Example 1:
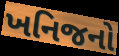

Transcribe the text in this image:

ખનિજનો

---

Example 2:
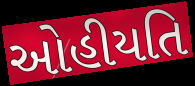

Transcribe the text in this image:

ઓહીયતિ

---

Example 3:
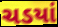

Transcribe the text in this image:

ચડયાં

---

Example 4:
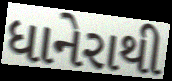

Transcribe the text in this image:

ધાનેરાથી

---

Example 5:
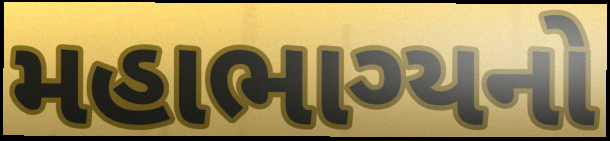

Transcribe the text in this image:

મહાભાગ્યનો